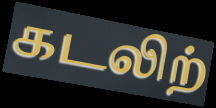
கடலிற்